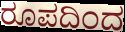
ರೂಪದಿಂದ